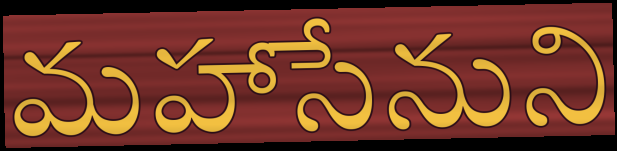
మహాసేనుని